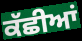
ਕੱਛੀਆਂ